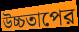
উচ্চতাপের